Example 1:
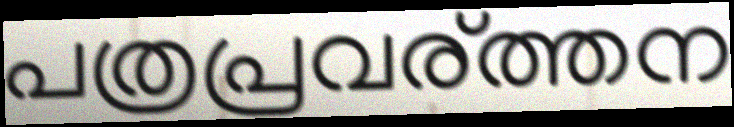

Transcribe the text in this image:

പത്രപ്രവര്ത്തന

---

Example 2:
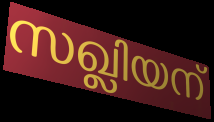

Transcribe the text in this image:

സഖ്ലിയന്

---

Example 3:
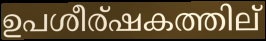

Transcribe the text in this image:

ഉപശീര്ഷകത്തില്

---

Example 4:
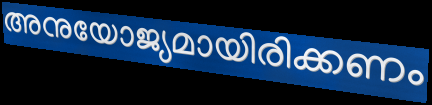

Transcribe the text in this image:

അനുയോജ്യമായിരിക്കണം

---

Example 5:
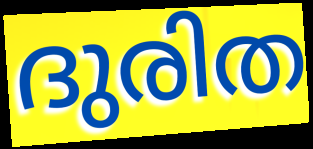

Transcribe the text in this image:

ദുരിത